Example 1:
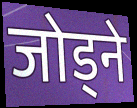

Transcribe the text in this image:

जोड्ने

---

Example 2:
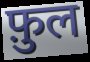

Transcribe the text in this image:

फ़ुल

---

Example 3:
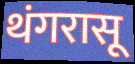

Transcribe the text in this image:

थंगरासू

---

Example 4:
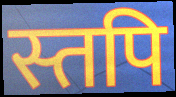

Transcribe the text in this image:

स्‍तपि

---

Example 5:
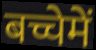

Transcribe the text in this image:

बच्चेमें